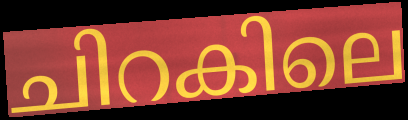
ചിറകിലെ